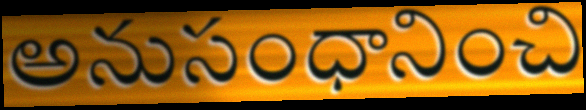
అనుసంధానించి